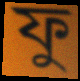
ফু